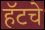
हॅटचे